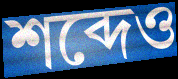
শব্দেও